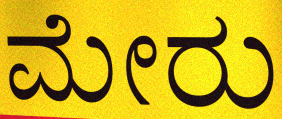
ಮೇರು